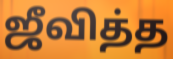
ஜீவித்த